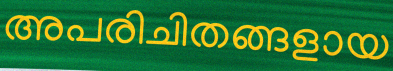
അപരിചിതങ്ങളായ